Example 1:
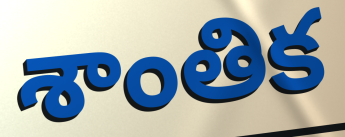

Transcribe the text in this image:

శాంతిక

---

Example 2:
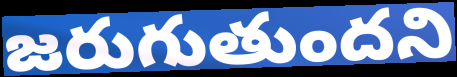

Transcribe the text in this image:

జరుగుతుందని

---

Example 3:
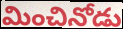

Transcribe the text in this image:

మించినోడు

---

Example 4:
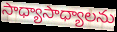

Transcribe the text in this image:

సాధ్యాసాధ్యాలను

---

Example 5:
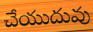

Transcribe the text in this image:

చేయుదువు